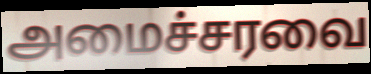
அமைச்சரவை